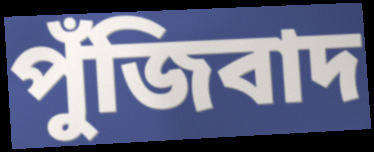
পুঁজিবাদ